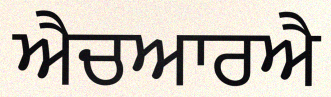
ਐਚਆਰਐ